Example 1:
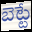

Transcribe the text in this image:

బెట్టే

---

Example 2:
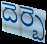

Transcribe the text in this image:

దెర్బె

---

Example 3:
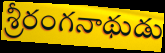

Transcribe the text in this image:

శ్రీరంగనాథుడు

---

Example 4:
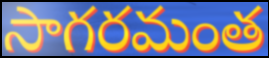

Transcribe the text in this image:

సాగరమంత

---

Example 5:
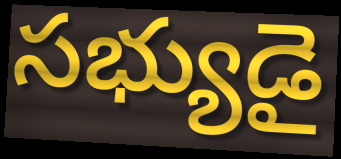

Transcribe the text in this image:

సభ్యుడై